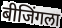
बीजिंगला